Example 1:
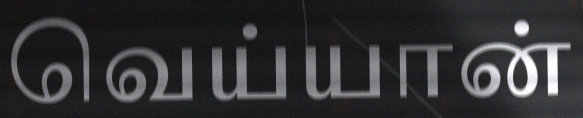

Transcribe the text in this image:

வெய்யான்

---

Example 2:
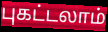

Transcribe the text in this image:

புகட்டலாம்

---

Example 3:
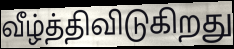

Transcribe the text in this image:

வீழ்த்திவிடுகிறது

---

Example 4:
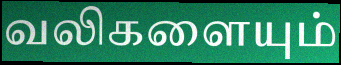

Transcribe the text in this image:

வலிகளையும்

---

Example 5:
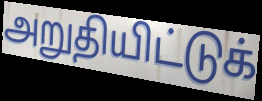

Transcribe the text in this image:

அறுதியிட்டுக்